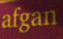
afgan